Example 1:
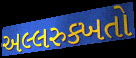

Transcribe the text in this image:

અલ્લરુક્ખતો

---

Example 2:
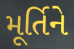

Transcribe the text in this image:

મૂર્તિને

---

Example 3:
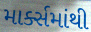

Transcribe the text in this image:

માર્ક્સમાંથી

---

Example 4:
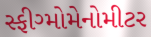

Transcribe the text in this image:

સ્ફીગ્મોમેનોમીટર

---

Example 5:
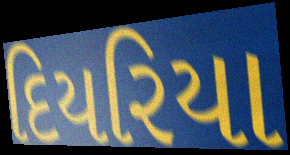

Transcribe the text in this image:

દિયરિયા